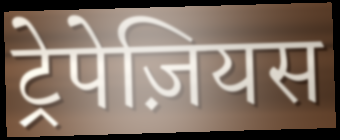
ट्रेपेज़ियस